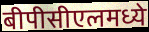
बीपीसीएलमध्ये